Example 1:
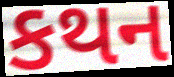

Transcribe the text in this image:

કથન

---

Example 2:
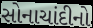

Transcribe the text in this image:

સોનાચાંદીનો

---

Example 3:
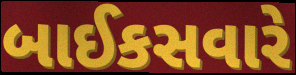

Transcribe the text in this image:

બાઈકસવારે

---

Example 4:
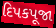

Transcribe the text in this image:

દિપકપૂજા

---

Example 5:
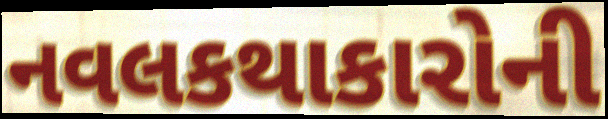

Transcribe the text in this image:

નવલકથાકારોની